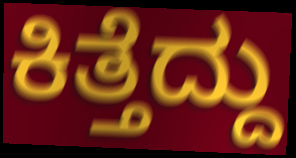
ಕಿತ್ತೆದ್ದು